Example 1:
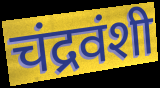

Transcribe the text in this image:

चंद्रवंशी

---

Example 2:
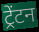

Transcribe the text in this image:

ट्रेंटन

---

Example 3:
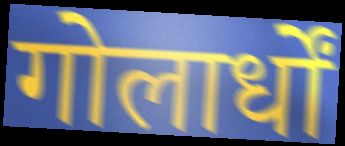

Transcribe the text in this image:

गोलार्धों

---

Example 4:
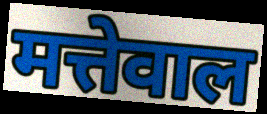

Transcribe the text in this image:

मत्तेवाल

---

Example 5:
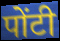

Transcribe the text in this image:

पोंटी